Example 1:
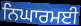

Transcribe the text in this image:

ਨਿਘਾਰਮਈ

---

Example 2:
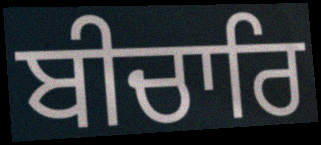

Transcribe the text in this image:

ਬੀਚਾਰਿ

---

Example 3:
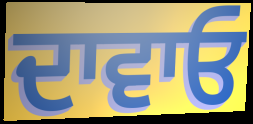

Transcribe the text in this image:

ਦਾਵਾਓ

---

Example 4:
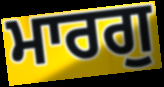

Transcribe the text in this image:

ਮਾਰਗੁ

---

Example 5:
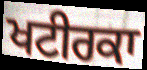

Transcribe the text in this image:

ਖਟੀਰਕਾ